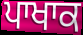
ਪਾਖਾਕ